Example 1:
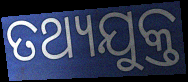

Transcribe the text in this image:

ତଥ୍ୟଯୁକ୍ତ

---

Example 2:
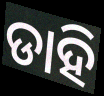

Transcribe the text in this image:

ଡାହି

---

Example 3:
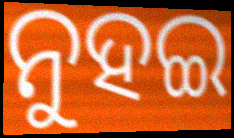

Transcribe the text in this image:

ନୁହଇ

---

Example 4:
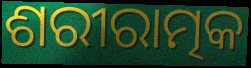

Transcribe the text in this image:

ଶରୀରାତ୍ମକ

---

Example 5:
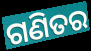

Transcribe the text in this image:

ଗଣିତର